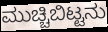
ಮುಚ್ಚಿಬಿಟ್ಟನು